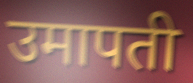
उमापती